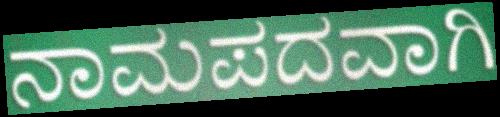
ನಾಮಪದವಾಗಿ